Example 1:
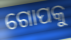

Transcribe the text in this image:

ଗୋପକୁ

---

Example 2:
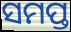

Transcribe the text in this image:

ସମପ୍ତ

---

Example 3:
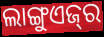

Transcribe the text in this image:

ଲାଙ୍ଗୁଏଜ୍‌ର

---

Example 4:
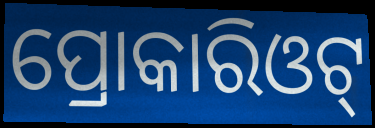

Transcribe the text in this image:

ପ୍ରୋକାରିଓଟ୍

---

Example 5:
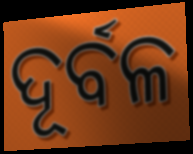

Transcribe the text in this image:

ଦୂର୍ବଳ